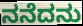
ನನೆದನು